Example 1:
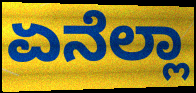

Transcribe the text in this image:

ಏನೆಲ್ಲಾ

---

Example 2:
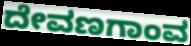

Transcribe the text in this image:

ದೇವಣಗಾಂವ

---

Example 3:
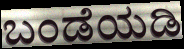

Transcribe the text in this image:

ಬಂಡೆಯಡಿ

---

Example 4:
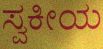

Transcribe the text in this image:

ಸ್ವಕೀಯ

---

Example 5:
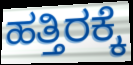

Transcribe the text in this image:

ಹತ್ತಿರಕ್ಕೆ